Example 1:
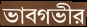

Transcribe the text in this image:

ভাবগভীর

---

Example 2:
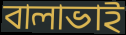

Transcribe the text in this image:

বালাভাই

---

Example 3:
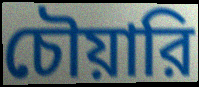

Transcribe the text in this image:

চৌয়ারি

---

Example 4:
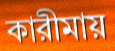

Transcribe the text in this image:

কারীমায়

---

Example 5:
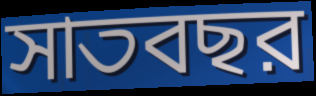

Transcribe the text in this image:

সাতবছর